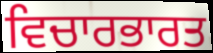
ਵਿਚਾਰਭਾਰਤ